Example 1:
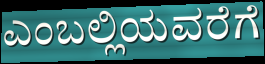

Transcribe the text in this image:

ಎಂಬಲ್ಲಿಯವರೆಗೆ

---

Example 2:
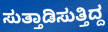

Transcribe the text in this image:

ಸುತ್ತಾಡಿಸುತ್ತಿದ್ದ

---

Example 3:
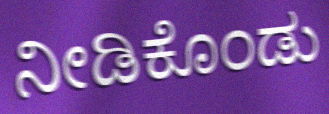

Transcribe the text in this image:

ನೀಡಿಕೊಂಡು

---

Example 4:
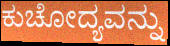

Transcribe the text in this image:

ಕುಚೋದ್ಯವನ್ನು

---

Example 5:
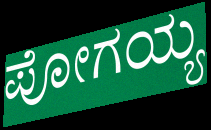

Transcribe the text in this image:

ಪೋಗಯ್ಯ